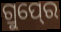
ଗ୍ରୁପ୍‍ରେ